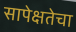
सापेक्षतेचा